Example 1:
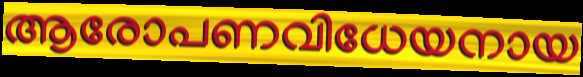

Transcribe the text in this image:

ആരോപണവിധേയനായ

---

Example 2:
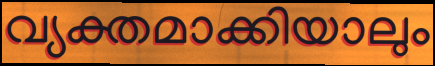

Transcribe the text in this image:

വ്യക്തമാക്കിയാലും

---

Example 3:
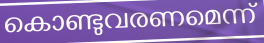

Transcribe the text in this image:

കൊണ്ടുവരണമെന്ന്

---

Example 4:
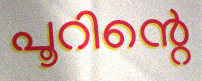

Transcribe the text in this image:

പൂറിന്റെ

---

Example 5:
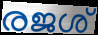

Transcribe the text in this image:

രജശ്